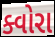
ક્વોરા